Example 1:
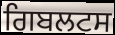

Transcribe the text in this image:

ਗਿਬਲਟਸ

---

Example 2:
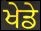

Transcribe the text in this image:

ਖੇਡੇ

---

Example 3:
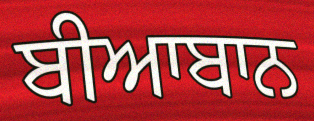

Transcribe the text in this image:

ਬੀਆਬਾਨ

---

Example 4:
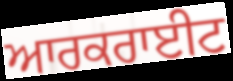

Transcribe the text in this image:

ਆਰਕਰਾਈਟ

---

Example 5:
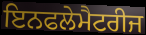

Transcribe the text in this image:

ਇਨਫਲੇਮੈਟਰੀਜ